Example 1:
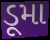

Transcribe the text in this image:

ડૂમા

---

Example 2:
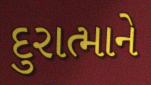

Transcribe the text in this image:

દુરાત્માને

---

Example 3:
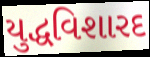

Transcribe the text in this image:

યુદ્ધવિશારદ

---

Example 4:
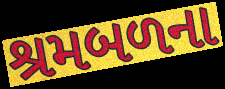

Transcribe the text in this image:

શ્રમબળના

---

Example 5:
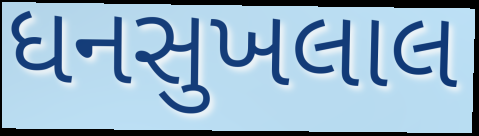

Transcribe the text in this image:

ધનસુખલાલ